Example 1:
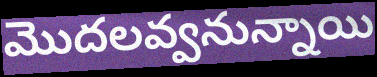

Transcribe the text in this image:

మొదలవ్వనున్నాయి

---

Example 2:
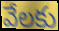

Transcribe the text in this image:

వేలకు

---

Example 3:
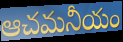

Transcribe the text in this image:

ఆచమనీయం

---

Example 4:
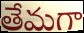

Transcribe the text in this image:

తేమగా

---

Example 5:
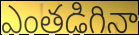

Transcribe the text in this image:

ఎంతడిగినా